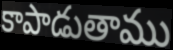
కాపాడుతాము